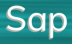
Sap